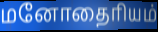
மனோதைரியம்